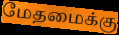
மேதமைக்கு